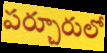
పర్చూరులో